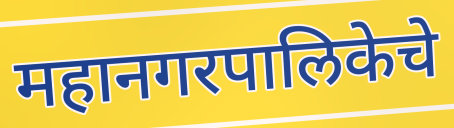
महानगरपालिकेचे